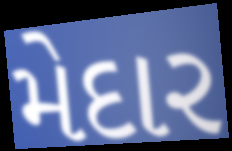
મેદાર